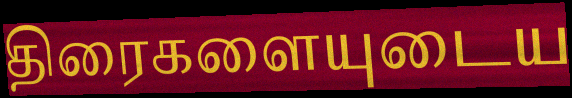
திரைகளையுடைய